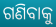
ଗଣିବାକୁ